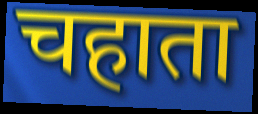
चहाता